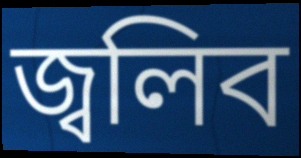
জ্বলিব